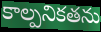
కాల్పనికతను